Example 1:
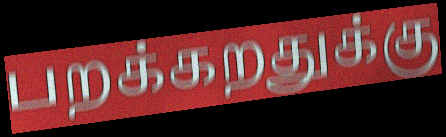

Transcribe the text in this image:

பறக்கறதுக்கு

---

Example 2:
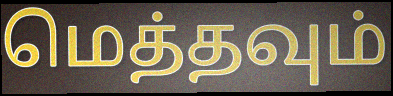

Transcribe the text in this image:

மெத்தவும்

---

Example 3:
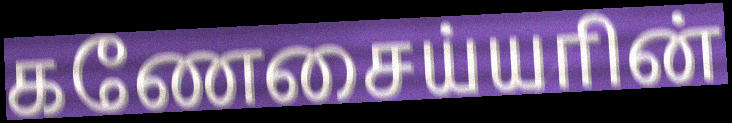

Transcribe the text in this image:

கணேசைய்யரின்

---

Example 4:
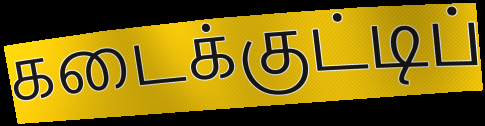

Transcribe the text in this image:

கடைக்குட்டிப்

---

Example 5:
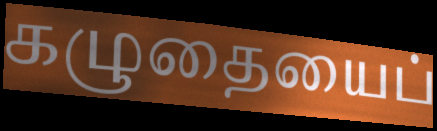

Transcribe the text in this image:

கழுதையைப்